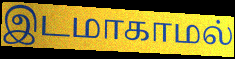
இடமாகாமல்